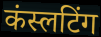
कंस्लटिंग